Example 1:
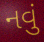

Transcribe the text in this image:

નવું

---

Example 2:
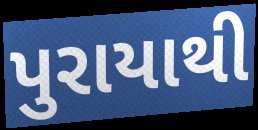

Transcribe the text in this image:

પુરાયાથી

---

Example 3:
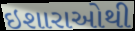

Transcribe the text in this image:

ઇશારાઓથી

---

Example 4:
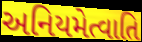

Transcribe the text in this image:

અનિયમેત્વાતિ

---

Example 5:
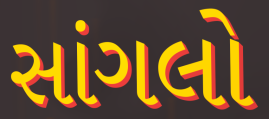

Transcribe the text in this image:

સાંગલો